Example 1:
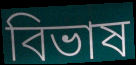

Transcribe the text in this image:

বিভাষ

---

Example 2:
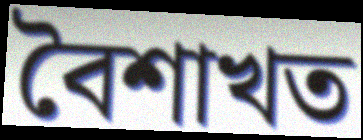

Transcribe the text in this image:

বৈশাখত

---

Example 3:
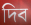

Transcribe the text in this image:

দিব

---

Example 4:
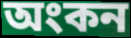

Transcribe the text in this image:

অংকন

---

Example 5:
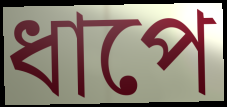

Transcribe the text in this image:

ধাপে